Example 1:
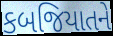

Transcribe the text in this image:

કબજિયાતને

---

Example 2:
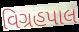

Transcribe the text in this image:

વિગ્રહપાલ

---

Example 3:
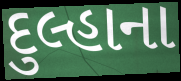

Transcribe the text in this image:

દુલ્હાના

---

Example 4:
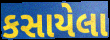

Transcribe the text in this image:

કસાયેલા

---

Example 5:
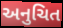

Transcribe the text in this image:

અનુચિત